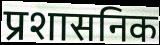
प्रशासनिक